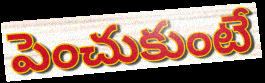
పెంచుకుంటే